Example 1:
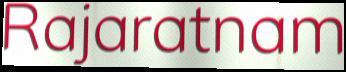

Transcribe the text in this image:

Rajaratnam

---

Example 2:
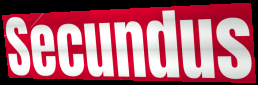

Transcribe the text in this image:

Secundus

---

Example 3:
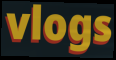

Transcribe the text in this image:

vlogs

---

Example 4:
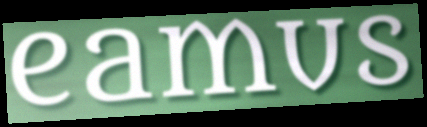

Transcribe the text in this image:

eamus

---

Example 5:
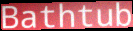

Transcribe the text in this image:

Bathtub